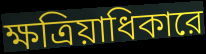
ক্ষত্রিয়াধিকারে